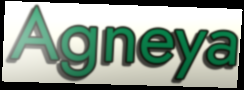
Agneya